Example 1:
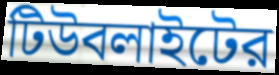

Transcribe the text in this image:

টিউবলাইটের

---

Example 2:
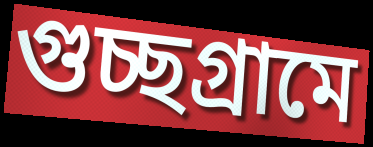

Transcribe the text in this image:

গুচ্ছগ্রামে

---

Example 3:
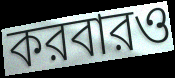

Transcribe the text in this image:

করবারও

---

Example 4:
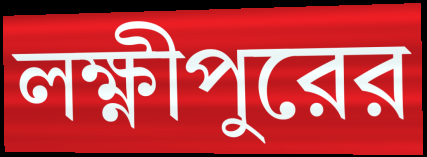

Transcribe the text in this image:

লক্ষ্ণীপুরের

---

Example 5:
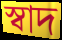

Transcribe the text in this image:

স্বাদ